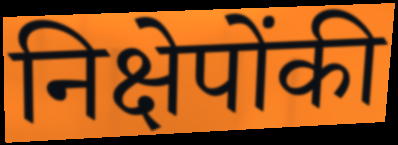
निक्षेपोंकी